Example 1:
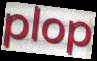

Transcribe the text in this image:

plop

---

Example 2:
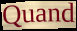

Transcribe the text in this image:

Quand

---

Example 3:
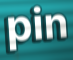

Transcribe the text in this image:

pin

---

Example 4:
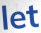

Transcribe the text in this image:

let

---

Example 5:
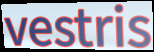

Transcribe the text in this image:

vestris